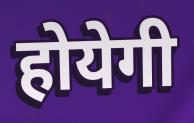
होयेगी